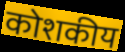
कोशकीय